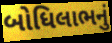
બોધિલાભનું